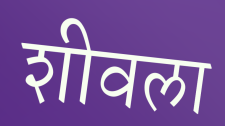
शीवला